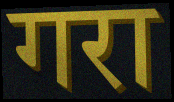
गरा